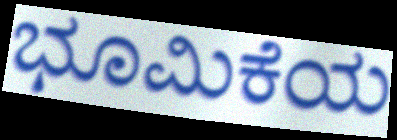
ಭೂಮಿಕೆಯ